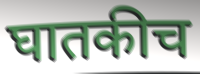
घातकीच